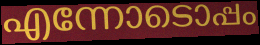
എന്നോടൊപ്പം